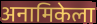
अनामिकेला